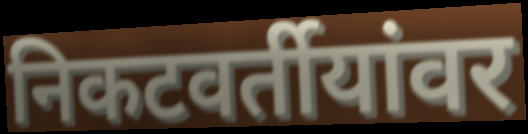
निकटवर्तीयांवर